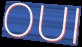
OUI